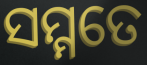
ସମ୍ମତେ